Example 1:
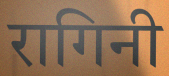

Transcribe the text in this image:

रागिनी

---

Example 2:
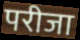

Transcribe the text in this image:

परीजा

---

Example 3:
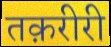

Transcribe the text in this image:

तक़रीरी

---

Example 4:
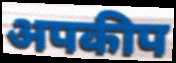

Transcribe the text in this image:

अपकीप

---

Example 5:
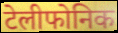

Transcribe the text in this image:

टेलीफोनिक